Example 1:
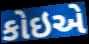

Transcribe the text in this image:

કોઇએ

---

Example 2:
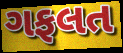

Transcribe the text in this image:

ગફલત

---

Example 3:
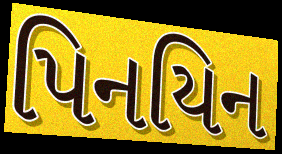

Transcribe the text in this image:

પિનયિન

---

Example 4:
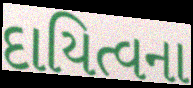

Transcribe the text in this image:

દાયિત્વના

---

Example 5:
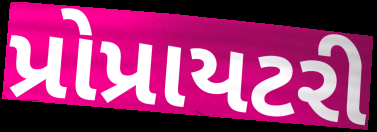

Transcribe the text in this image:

પ્રોપ્રાયટરી